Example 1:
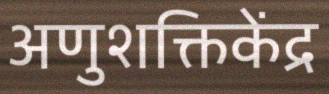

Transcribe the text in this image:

अणुशक्तिकेंद्र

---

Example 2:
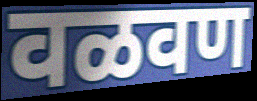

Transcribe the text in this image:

वळवण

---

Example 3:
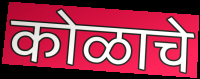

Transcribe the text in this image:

कोळाचे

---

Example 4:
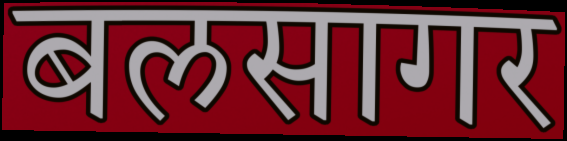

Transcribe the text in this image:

बलसागर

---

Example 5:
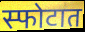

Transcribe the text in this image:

स्फोटात